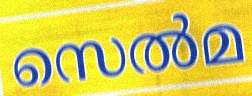
സെൽമ